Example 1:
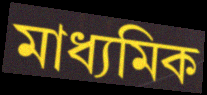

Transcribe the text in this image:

মাধ্যমিক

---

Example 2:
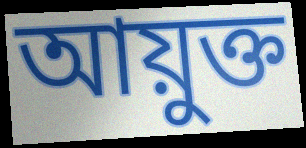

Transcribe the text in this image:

আয়ুক্ত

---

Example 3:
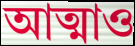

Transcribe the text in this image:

আত্মাও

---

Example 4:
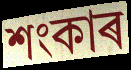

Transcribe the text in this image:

শংকাৰ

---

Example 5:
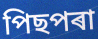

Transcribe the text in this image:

পিছপৰা